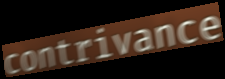
contrivance